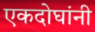
एकदोघांनी